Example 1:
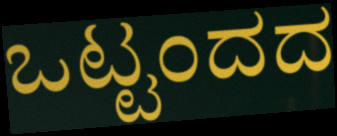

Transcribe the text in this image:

ಒಟ್ಟಂದದ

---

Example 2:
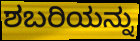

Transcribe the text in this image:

ಶಬರಿಯನ್ನು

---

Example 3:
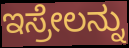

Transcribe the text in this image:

ಇಸ್ರೇಲನ್ನು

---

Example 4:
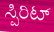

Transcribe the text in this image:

ಸ್ಪಿರಿಟ್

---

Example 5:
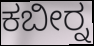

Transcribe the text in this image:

ಕಬೀರ್‍ನ